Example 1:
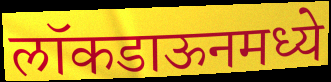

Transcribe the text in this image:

लॉकडाऊनमध्ये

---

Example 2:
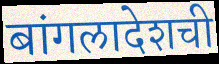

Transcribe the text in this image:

बांगलादेशची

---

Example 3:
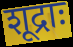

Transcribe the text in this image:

शूद्राः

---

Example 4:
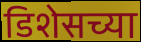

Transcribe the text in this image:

डिशेसच्या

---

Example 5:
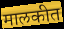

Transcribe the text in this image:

मालकीत